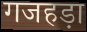
गजहड़ा